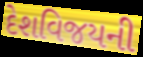
દેશવિજયની